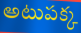
అటుపక్క